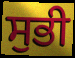
ਸੁਭੀ